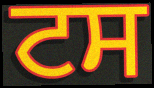
ਟਸ